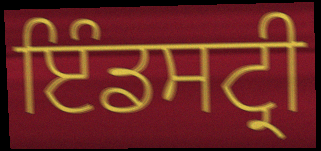
ਇੰਡਸਟ੍ਰੀ